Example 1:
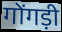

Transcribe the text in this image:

गोंगड़ी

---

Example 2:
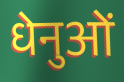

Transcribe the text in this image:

धेनुओं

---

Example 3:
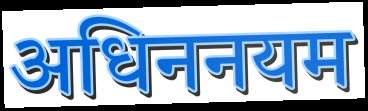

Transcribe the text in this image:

अधिननयम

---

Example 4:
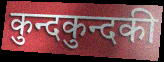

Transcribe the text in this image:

कुन्दकुन्दकी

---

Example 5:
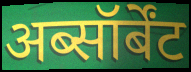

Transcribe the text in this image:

अब्सॉर्बेंट